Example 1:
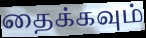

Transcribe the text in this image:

தைக்கவும்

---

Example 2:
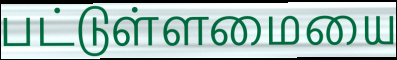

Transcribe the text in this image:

பட்டுள்ளமையை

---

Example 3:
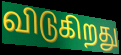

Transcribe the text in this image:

விடுகிறது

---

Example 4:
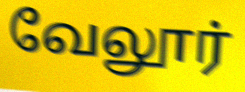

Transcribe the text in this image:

வேலூர்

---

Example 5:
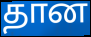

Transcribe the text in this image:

தான